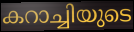
കറാച്ചിയുടെ